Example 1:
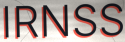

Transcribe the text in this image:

IRNSS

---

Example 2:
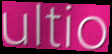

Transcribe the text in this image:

ultio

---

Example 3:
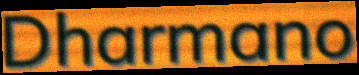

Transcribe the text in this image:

Dharmano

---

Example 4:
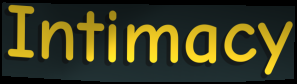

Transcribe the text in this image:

Intimacy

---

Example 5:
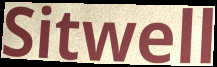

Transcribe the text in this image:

Sitwell